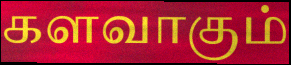
களவாகும்